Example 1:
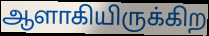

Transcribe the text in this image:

ஆளாகியிருக்கிற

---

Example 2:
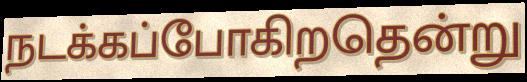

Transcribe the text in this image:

நடக்கப்போகிறதென்று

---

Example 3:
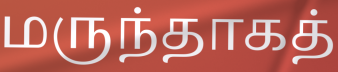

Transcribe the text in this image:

மருந்தாகத்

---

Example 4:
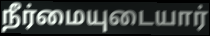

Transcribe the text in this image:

நீர்மையுடையார்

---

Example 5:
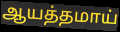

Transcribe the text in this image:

ஆயத்தமாய்